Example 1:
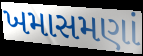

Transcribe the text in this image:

ખમાસમણાં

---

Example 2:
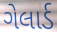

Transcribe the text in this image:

ગેલાર્ડ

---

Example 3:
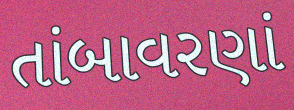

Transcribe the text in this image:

તાંબાવરણાં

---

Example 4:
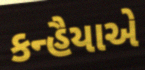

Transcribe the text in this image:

કન્હૈયાએ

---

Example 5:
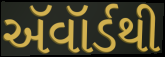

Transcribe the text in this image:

ઍવૉર્ડથી